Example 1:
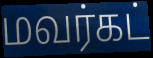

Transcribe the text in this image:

மவர்கட்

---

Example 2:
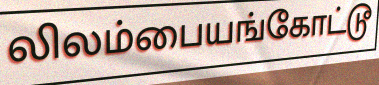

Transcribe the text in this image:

லிலம்பையங்கோட்டூ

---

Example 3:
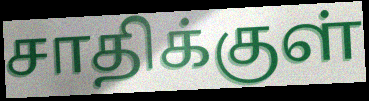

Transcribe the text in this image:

சாதிக்குள்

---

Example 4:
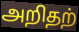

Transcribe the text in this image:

அறிதற்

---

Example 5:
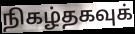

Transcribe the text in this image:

நிகழ்தகவுக்